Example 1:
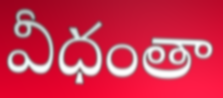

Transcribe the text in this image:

వీధంతా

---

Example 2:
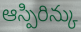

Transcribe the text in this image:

ఆస్పిరిన్కు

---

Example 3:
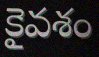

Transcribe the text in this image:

కైవశం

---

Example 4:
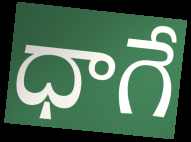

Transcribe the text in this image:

ధాగే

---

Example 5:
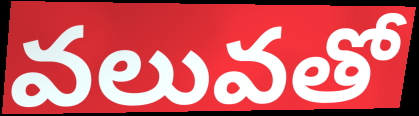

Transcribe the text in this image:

వలువతో